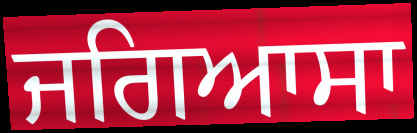
ਜਗਿਆਸਾ